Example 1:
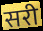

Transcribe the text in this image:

सरी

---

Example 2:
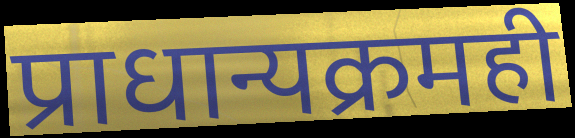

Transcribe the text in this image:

प्राधान्यक्रमही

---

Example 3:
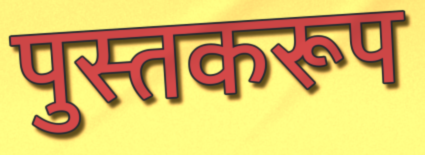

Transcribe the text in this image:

पुस्तकरूप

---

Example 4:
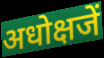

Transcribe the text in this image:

अधोक्षजें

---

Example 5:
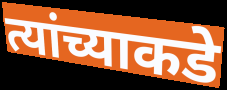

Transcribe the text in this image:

त्यांच्याकडे